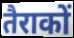
तैराकों